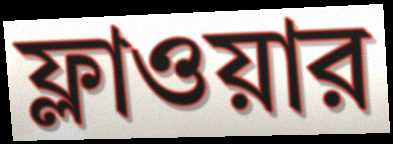
ফ্লাওয়ার